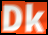
Dk